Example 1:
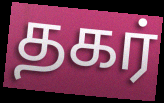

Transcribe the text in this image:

தகர்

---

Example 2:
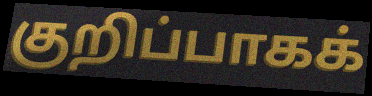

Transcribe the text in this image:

குறிப்பாகக்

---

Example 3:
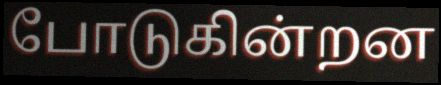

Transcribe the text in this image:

போடுகின்றன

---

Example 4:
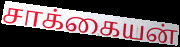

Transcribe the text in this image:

சாக்கையன்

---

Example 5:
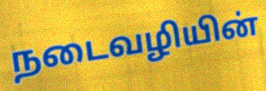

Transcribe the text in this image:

நடைவழியின்